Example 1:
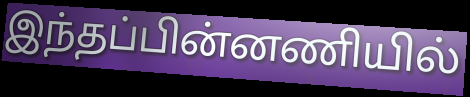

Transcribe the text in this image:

இந்தப்பின்னணியில்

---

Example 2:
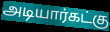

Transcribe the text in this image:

அடியார்கட்கு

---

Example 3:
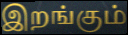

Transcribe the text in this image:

இறங்கும்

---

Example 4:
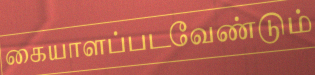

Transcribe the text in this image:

கையாளப்படவேண்டும்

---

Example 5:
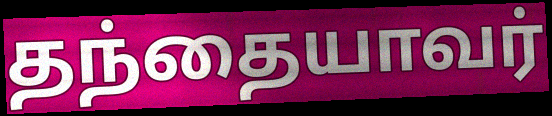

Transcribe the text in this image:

தந்தையாவர்